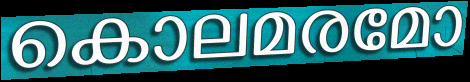
കൊലമരമോ